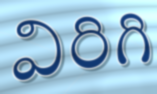
విరిగి